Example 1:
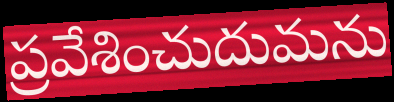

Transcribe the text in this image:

ప్రవేశించుదుమను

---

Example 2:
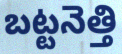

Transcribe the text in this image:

బట్టనెత్తి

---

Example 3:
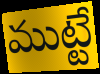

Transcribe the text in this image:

ముట్టే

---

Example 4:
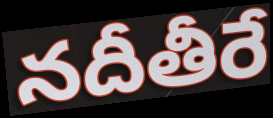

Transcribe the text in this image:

నదీతీరే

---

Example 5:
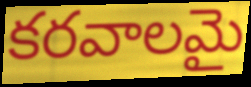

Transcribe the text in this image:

కరవాలమై